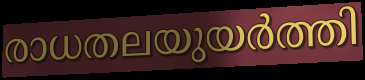
രാധതലയുയർത്തി